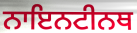
ਨਾਇਨਟੀਨਥ